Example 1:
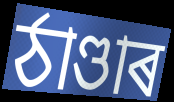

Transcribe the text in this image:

ঠাণ্ডাৰ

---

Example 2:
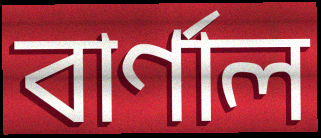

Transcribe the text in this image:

বাৰ্ণাল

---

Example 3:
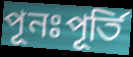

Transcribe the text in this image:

পূনঃপূৰ্তি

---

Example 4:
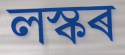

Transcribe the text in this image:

লস্কৰ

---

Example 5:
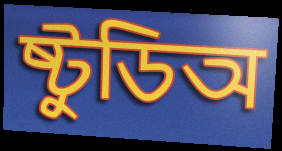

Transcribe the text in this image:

ষ্টুডিঅ